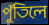
পুঁতিলে